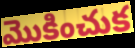
మొకించుక